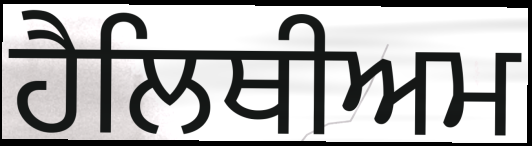
ਹੈਲਿਥੀਅਮ